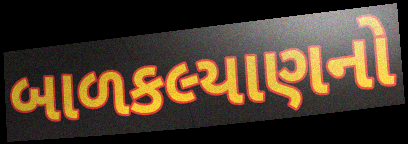
બાળકલ્યાણનો